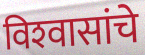
विश्‍वासांचे